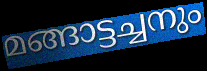
മങ്ങാട്ടച്ചനും